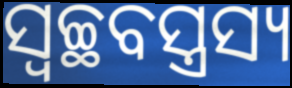
ସ୍ଵଚ୍ଛବସ୍ତ୍ରସ୍ୟ